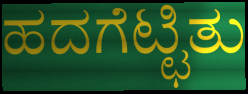
ಹದಗೆಟ್ಟಿತು